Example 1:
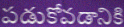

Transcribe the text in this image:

పడుకోవడానికి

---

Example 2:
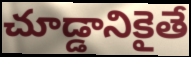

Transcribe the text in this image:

చూడ్డానికైతే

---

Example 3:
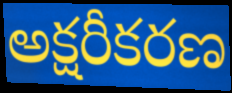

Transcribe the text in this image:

అక్షరీకరణ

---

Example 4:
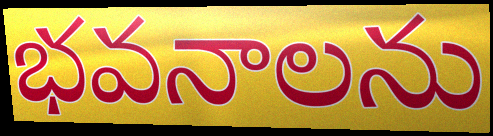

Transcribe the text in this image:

భవనాలను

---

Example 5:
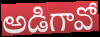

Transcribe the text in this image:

అడిగావో